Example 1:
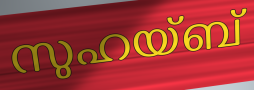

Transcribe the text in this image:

സുഹയ്ബ്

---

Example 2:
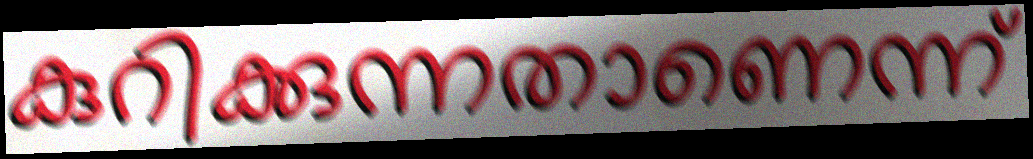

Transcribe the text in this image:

കുറിക്കുന്നതാണെന്ന്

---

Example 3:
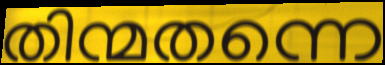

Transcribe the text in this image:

തിന്മതന്നെ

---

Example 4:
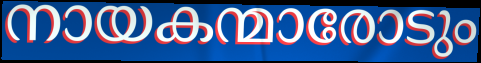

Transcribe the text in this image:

നായകന്മാരോടും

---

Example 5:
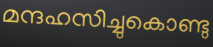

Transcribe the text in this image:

മന്ദഹസിച്ചുകൊണ്ടു